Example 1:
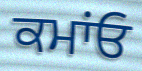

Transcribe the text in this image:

ਕਮਾਂਓ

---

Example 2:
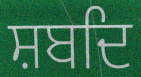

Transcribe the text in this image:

ਸ਼ਬਦਿ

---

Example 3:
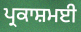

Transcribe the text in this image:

ਪ੍ਰਕਾਸ਼ਮਈ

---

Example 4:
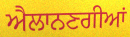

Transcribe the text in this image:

ਐਲਾਨਣਗੀਆਂ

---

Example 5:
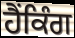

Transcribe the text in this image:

ਹੈਂਕਿੰਗ